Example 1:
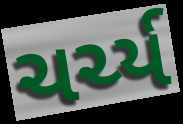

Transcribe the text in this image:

ચર્ચ્ય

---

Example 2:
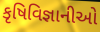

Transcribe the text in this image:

કૃષિવિજ્ઞાનીઓ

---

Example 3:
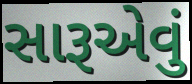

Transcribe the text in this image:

સારૂએવું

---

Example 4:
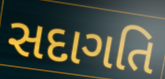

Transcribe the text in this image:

સદાગતિ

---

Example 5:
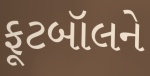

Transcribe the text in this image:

ફૂટબૉલને